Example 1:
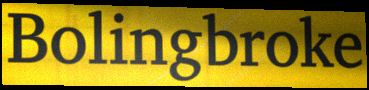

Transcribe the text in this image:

Bolingbroke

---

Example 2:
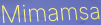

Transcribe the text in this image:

Mimamsa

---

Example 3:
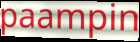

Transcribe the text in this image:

paampin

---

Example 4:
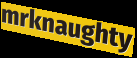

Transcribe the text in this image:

mrknaughty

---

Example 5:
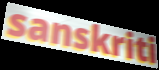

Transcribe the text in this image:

sanskriti